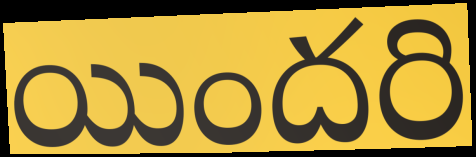
యిందరి